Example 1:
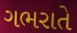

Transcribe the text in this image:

ગભરાતે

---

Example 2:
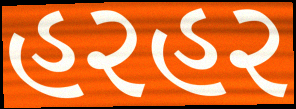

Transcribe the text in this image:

હરહર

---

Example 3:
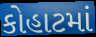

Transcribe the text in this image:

કોહાટમાં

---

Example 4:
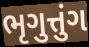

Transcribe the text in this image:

ભૃગુત્તુંગ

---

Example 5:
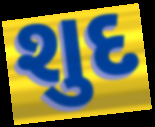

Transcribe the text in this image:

શુદ